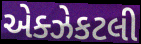
એક્ઝેકટલી